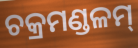
ଚକ୍ରମଣ୍ଡଳମ୍